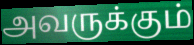
அவருக்கும்